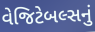
વેજિટેબલ્સનું